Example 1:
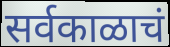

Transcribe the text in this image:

सर्वकाळाचं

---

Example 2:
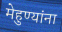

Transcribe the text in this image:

मेहुण्यांना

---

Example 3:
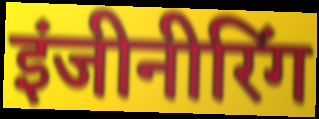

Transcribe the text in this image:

इंजीनीरिंग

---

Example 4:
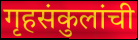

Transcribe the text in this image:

गृहसंकुलांची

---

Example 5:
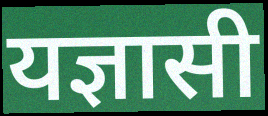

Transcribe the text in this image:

यज्ञासी